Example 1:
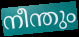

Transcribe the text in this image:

നീന്തും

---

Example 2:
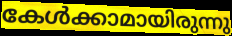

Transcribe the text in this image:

കേൾക്കാമായിരുന്നു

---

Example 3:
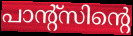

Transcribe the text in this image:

പാന്റ്സിന്റെ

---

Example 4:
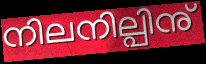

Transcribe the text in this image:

നിലനില്പിനു്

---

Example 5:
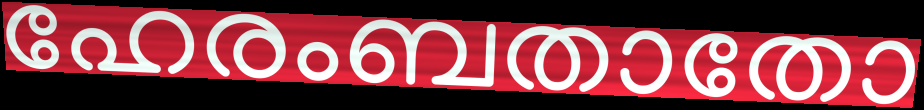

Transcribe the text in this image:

ഹേരംബതാതോ